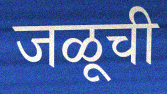
जळूची